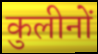
कुलीनों